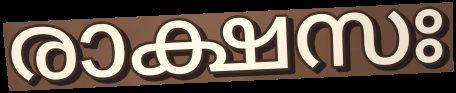
രാക്ഷസഃ